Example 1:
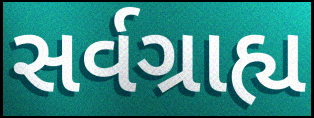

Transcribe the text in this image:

સર્વગ્રાહ્ય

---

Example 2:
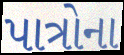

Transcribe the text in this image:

પાત્રોના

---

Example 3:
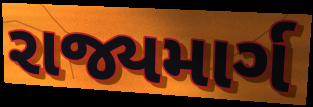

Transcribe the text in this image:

રાજ્યમાર્ગ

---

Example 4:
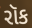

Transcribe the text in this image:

રૉક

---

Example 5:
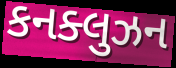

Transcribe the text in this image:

કનક્લુઝન